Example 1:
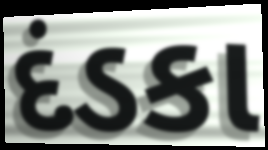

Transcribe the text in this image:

દંડકા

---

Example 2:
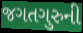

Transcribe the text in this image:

જગતગુરુની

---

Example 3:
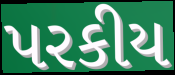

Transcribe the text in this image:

પરકીય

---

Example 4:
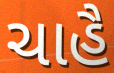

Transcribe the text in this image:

ચાહૈ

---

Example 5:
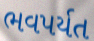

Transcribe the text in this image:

ભવપર્યત